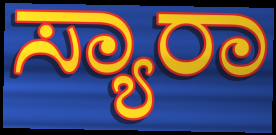
ಸ್ಯಾರಾ